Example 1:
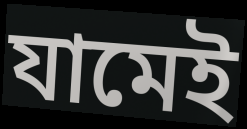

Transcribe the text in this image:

যামেই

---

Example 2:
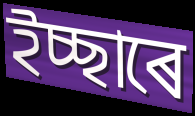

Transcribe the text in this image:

ইচ্ছাৰে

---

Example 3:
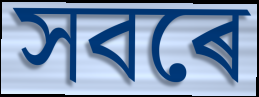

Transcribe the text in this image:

সবৰে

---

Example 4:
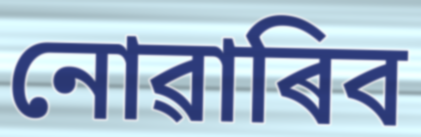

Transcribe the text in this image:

নোৱাৰিব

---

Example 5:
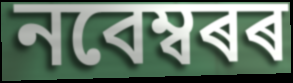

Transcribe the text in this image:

নবেম্বৰৰ